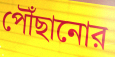
পৌঁছানোর